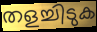
തളച്ചിടുക